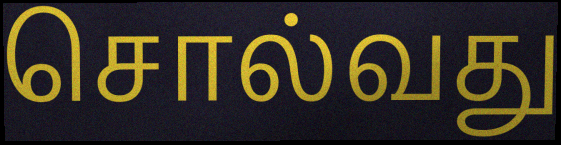
சொல்வது